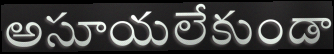
అసూయలేకుండా